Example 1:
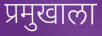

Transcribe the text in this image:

प्रमुखाला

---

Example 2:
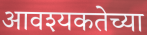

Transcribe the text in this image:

आवश्यकतेच्या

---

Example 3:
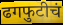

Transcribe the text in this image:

ढगफुटीचं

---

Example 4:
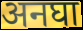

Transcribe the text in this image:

अनघा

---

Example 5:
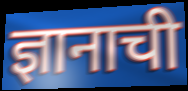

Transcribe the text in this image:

ज्ञानाची